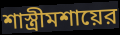
শাস্ত্রীমশায়ের